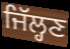
ਜਿੱਲ੍ਹਣ